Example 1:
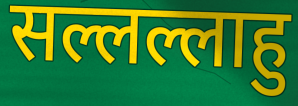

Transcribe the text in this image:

सल्लल्लाहु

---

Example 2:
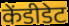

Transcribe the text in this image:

केंडीडेट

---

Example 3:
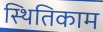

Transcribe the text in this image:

स्थितिकाम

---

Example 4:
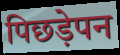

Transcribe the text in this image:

पिछड़ेपन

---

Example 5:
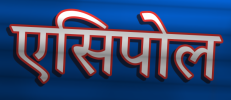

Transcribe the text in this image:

एसिपोल